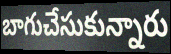
బాగుచేసుకున్నారు